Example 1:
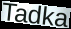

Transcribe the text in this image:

Tadka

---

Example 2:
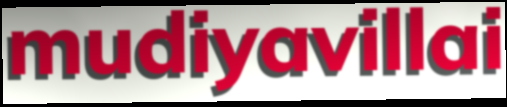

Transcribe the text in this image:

mudiyavillai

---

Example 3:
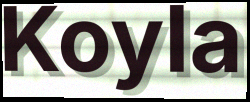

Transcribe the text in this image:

Koyla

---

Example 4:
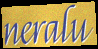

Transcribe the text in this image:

neralu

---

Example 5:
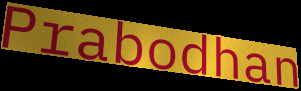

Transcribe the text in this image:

Prabodhan